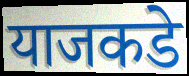
याजकडे